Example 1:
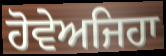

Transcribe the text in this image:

ਹੋਵੇਅਜਿਹਾ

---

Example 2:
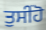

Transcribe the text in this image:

ਤੁਸੀਂਹੋ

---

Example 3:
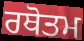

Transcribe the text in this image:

ਰਥੋਤਮ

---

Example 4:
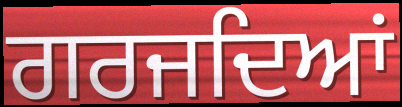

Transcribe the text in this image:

ਗਰਜਦਿਆਂ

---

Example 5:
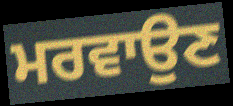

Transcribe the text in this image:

ਮਰਵਾਉਣ